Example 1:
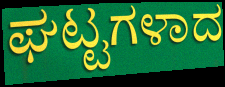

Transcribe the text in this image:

ಘಟ್ಟಗಳಾದ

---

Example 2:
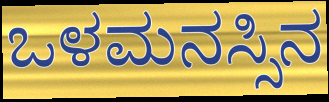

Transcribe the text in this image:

ಒಳಮನಸ್ಸಿನ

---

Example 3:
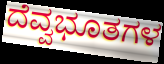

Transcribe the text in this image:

ದೆವ್ವಭೂತಗಳ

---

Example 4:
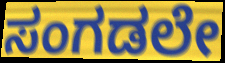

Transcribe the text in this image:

ಸಂಗಡಲೇ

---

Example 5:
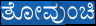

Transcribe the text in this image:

ತೋವುಂಚಿ